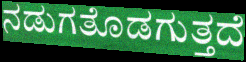
ನಡುಗತೊಡಗುತ್ತದೆ